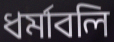
ধর্মাবলি